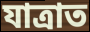
যাত্ৰাত